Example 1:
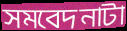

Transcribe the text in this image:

সমবেদনাটা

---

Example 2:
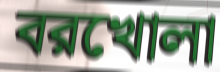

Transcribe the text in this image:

বরখোলা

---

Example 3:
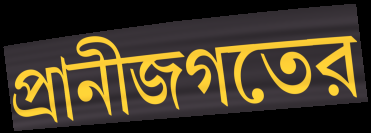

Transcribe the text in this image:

প্রানীজগতের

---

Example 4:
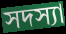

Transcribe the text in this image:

সদস্যা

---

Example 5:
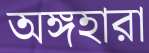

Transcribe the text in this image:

অঙ্গহারা